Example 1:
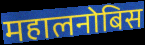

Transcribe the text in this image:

महालनोबिस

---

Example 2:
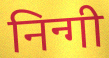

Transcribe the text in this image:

निन्गी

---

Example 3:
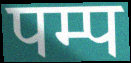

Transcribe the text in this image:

पम्प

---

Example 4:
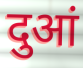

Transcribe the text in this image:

दुआं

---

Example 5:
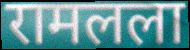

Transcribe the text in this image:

रामलला